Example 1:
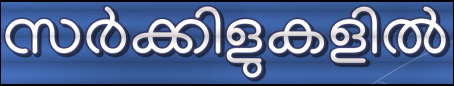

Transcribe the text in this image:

സർക്കിളുകളിൽ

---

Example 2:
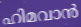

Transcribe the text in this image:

ഹിമവാൻ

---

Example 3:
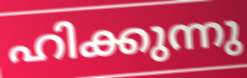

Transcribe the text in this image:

ഹിക്കുന്നു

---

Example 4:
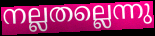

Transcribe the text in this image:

നല്ലതല്ലെന്നു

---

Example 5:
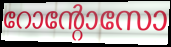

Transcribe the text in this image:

റോന്റോസോ